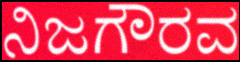
ನಿಜಗೌರವ